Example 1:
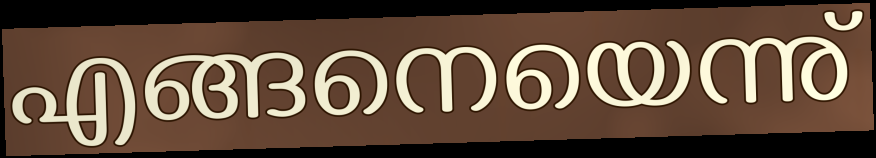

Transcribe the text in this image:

എങ്ങനെയെന്നു്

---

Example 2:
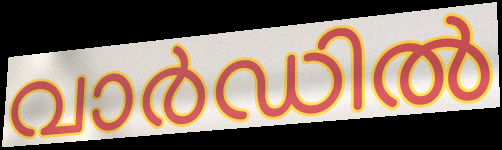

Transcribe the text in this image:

വാർഡിൽ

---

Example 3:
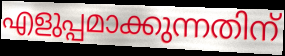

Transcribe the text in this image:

എളുപ്പമാക്കുന്നതിന്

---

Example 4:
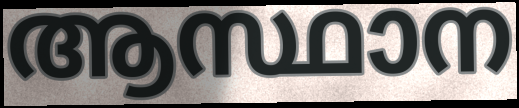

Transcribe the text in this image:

ആസ്ഥാന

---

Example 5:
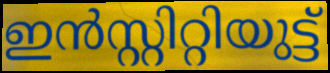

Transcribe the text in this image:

ഇൻസ്റ്റിറ്റിയുട്ട്